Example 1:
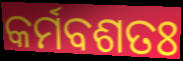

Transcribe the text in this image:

କର୍ମବଶତଃ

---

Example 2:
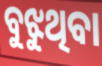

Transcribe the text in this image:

ବୁଝୁଥିବା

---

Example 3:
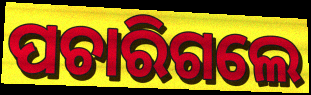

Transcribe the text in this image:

ପଚାରିଗଲେ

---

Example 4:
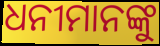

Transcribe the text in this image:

ଧନୀମାନଙ୍କୁ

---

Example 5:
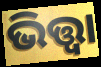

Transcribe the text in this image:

ଭିତ୍ତ୍ୱା